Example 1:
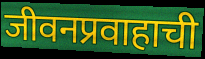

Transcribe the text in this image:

जीवनप्रवाहाची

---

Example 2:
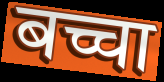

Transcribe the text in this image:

बच्चा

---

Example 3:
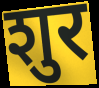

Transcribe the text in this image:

शुर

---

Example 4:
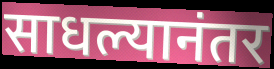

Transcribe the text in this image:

साधल्यानंतर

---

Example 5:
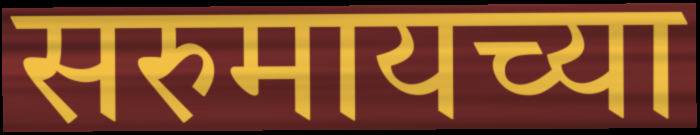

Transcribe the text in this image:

सरुमायच्या